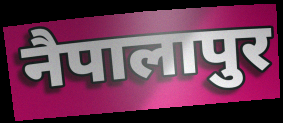
नैपालापुर